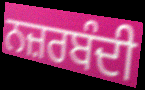
ਨਜ਼ਰਬੰਦੀ